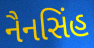
નૈનસિંહ